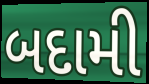
બદામી